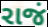
રાજં